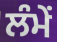
ਲੰਮੇਂ